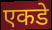
एकडे